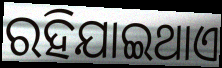
ରହିଯାଇଥାଏ